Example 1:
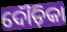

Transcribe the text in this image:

ଦୌଡ଼ିକା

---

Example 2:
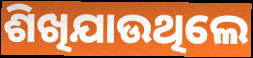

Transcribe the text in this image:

ଶିଖିଯାଉଥିଲେ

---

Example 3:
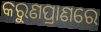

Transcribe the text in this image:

କରୁଣପ୍ରାଣରେ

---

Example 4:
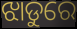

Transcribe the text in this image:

ଝାଡୁରେ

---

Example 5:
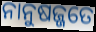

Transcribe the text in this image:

ନାନୁଷଜ୍ଜତେ